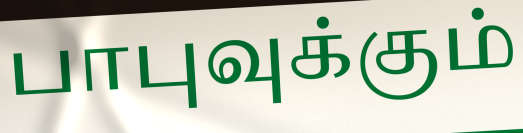
பாபுவுக்கும்